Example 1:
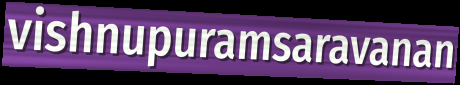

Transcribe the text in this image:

vishnupuramsaravanan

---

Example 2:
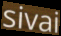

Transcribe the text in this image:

sivai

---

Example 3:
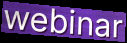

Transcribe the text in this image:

webinar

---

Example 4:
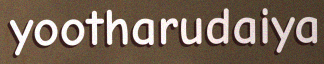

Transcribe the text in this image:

yootharudaiya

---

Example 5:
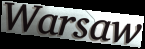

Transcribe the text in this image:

Warsaw